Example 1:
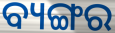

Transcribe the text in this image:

ବ୍ୟଙ୍ଗର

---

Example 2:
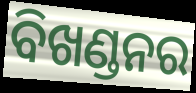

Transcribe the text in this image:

ବିଖଣ୍ଡନର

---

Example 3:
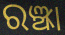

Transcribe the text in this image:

ରଞ୍ଝା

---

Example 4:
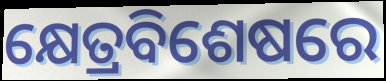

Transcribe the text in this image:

କ୍ଷେତ୍ରବିଶେଷରେ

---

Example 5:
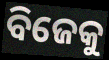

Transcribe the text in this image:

ବିଜେକୁ